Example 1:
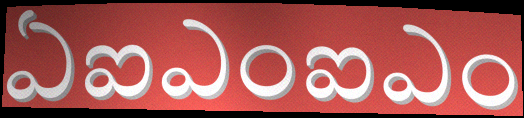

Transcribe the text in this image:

ఏఐఎంఐఎం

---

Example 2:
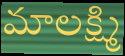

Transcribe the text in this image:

మాలక్ష్మి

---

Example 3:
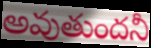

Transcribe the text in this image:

అవుతుందనీ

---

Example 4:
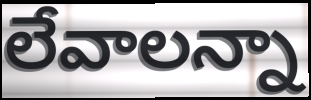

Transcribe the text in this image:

లేవాలన్నా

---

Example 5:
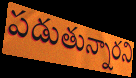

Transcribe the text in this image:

పడుతున్నారని